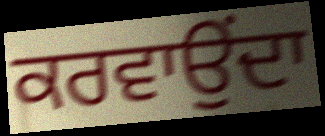
ਕਰਵਾਉਂਦਾ